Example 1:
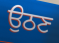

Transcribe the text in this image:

ਉਠਣ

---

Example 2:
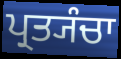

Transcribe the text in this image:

ਪ੍ਰਤ੍ਯੰਚਾ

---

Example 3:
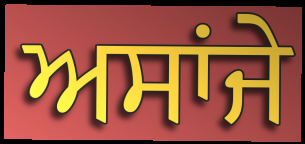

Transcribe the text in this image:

ਅਸਾਂਜੇ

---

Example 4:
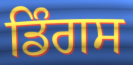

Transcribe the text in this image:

ਡਿੰਗਸ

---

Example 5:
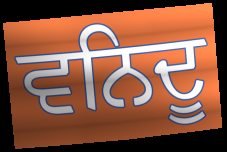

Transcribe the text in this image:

ਵਨਿਦੂ